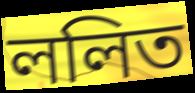
ললিত